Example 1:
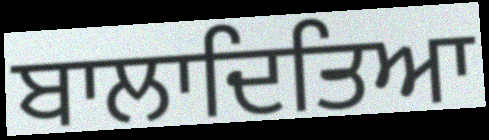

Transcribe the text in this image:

ਬਾਲਾਦਿਤਿਆ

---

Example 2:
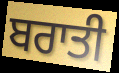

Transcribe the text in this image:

ਬਰਾਤੀ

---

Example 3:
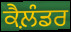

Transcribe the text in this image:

ਕੈਲ਼ੰਡਰ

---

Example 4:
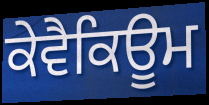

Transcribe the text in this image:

ਕੇਵੈਕਿਊਮ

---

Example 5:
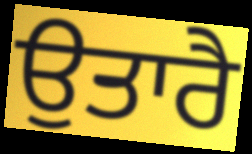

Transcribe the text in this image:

ਉਤਾਰੈ